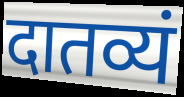
दातव्यं